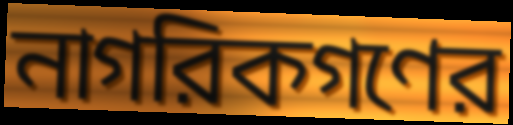
নাগরিকগণের